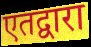
एतद्वारा